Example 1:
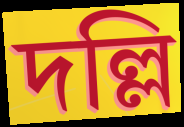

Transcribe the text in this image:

দল্লি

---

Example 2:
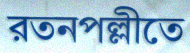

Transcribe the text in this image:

রতনপল্লীতে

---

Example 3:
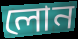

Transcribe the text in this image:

লোন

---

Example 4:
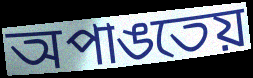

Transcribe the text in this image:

অপাঙতেয়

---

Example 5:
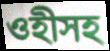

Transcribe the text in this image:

ওহীসহ